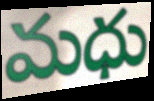
మధు